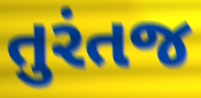
તુરંતજ